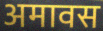
अमावस